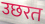
उछरत